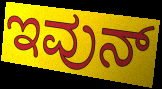
ಇವುನ್